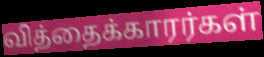
வித்தைக்காரர்கள்